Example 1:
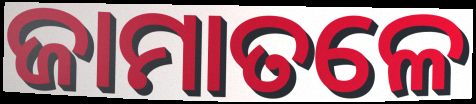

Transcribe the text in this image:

ଜାମାତଳେ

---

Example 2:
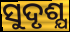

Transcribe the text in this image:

ସୁଦୃଶ୍ଯ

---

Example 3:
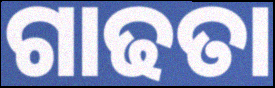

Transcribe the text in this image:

ଗାଢତା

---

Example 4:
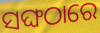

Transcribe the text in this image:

ସଙ୍ଘଠାରେ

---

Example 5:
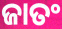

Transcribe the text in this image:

ଜାତଂ